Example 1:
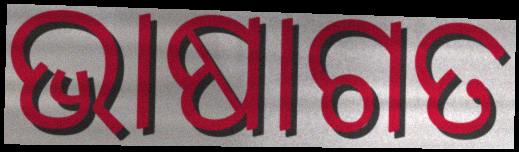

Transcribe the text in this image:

ଭାଷାଗତ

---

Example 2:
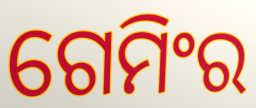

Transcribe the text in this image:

ଗେମିଂର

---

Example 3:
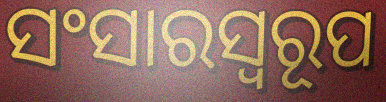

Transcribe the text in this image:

ସଂସାରସ୍ବରୂପ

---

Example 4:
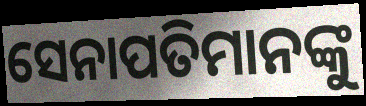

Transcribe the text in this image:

ସେନାପତିମାନଙ୍କୁ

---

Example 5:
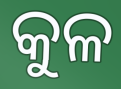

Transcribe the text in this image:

କୁଳ